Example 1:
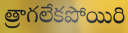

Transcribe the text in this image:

త్రాగలేకపోయిరి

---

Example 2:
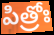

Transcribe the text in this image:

పిత్రోః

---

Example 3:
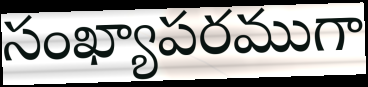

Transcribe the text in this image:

సంఖ్యాపరముగా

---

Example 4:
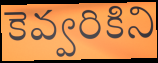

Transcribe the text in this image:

కెవ్వరికిని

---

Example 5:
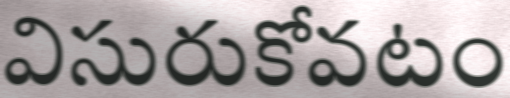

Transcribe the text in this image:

విసురుకోవటం